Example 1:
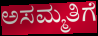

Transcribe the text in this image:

ಅಸಮ್ಮತಿಗೆ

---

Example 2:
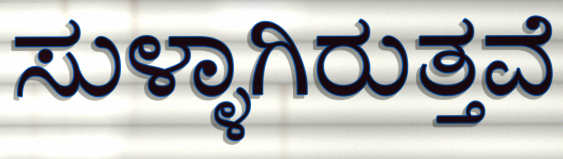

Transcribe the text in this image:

ಸುಳ್ಳಾಗಿರುತ್ತವೆ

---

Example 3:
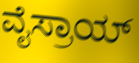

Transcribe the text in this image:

ವೈಸ್ರಾಯ್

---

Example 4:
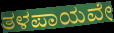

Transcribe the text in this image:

ತಳಪಾಯವೇ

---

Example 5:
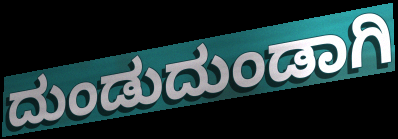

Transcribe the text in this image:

ದುಂಡುದುಂಡಾಗಿ